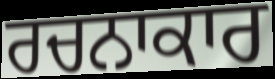
ਰਚਨਾਕਾਰ